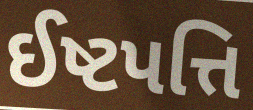
ઈષ્ટપત્તિ